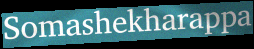
Somashekharappa